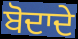
ਬੋਦਾਦੇ